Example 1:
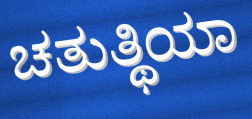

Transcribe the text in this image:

ಚತುತ್ಥಿಯಾ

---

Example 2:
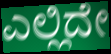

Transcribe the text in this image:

ಎಲ್ಲಿದೇ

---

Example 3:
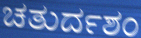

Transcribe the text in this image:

ಚತುರ್ದಶಂ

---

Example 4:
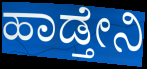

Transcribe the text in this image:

ಹಾಡ್ತೇನಿ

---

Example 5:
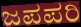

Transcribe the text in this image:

ಜಪಪರಿ